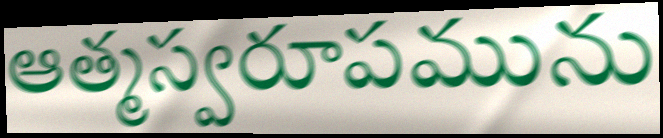
ఆత్మస్వరూపమును